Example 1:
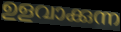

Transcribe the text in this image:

ഉളവാക്കുന്ന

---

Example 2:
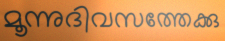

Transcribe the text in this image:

മൂന്നുദിവസത്തേക്കു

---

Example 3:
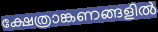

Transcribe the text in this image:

ക്ഷേത്രാങ്കണങ്ങളിൽ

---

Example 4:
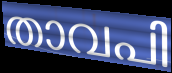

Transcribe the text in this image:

താവപി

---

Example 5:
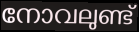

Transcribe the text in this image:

നോവലുണ്ട്